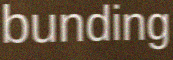
bunding